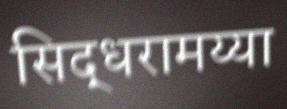
सिद्धरामय्या